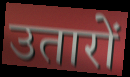
उतारों